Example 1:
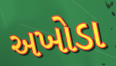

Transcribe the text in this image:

અખોડા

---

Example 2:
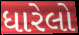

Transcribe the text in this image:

ધારેલો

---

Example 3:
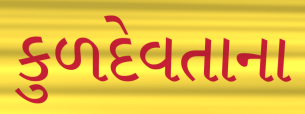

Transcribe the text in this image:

કુળદેવતાના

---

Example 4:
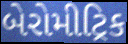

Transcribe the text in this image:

બેરોમીટ્રિક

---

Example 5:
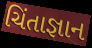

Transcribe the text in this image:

ચિંતાજ્ઞાન